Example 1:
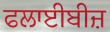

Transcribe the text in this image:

ਫਲਾਈਬੀਜ਼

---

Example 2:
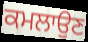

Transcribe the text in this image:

ਕਮਲਾਉਣ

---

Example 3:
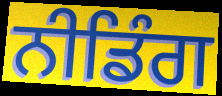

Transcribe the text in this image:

ਨੀਡਿੰਗ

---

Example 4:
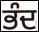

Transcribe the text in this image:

ਭੰਦ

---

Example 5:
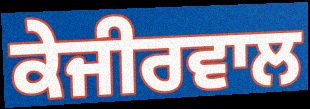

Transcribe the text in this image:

ਕੇਜੀਰਵਾਲ